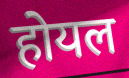
होयल